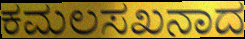
ಕಮಲಸಖನಾದ